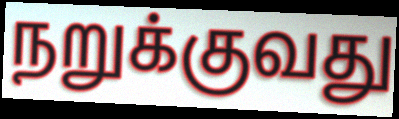
நறுக்குவது